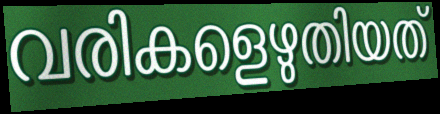
വരികളെഴുതിയത്